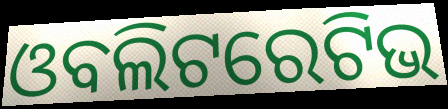
ଓବଲିଟରେଟିଭ